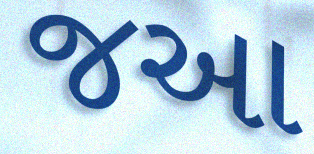
જઆ